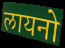
लायनो